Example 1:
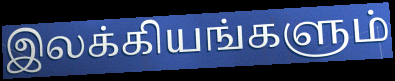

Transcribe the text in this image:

இலக்கியங்களும்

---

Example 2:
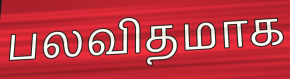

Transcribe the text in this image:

பலவிதமாக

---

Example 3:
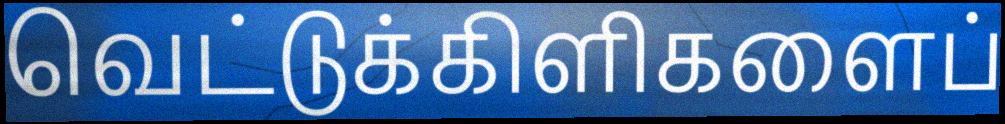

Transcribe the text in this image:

வெட்டுக்கிளிகளைப்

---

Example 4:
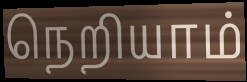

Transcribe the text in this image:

நெறியாம்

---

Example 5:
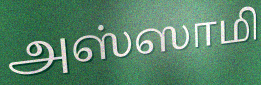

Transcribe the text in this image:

அஸ்ஸாமி